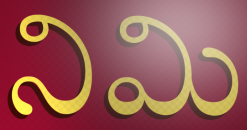
నిమి